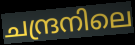
ചന്ദ്രനിലെ